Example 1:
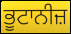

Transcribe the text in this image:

ਭੂਟਾਨੀਜ਼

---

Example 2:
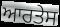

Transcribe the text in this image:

ਆਰਤੇਸ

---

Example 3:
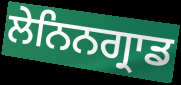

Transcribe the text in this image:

ਲੇਨਿਨਗ੍ਰਾਡ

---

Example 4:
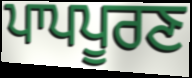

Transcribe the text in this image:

ਪਾਪਪੂਰਣ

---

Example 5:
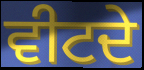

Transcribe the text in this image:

ਵੀਟਦੇ